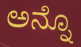
ಅನ್ನೊ